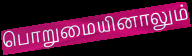
பொறுமையினாலும்